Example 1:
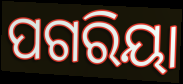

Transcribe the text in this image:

ପଗରିୟା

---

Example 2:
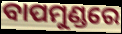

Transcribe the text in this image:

ବାପମୁଣ୍ଡରେ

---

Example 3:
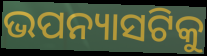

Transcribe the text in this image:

ଭପନ୍ୟାସଟିକୁ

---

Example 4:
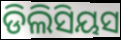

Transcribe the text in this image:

ଡିଲିସିୟସ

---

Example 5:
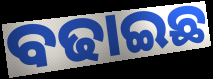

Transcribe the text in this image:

ବଢାଇଛ